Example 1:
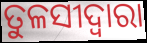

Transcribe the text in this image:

ତୁଳସୀଦ୍ବାରା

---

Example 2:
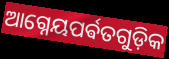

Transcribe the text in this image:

ଆଗ୍ନେୟପର୍ଵତଗୁଡ଼ିକ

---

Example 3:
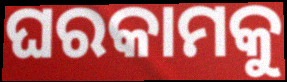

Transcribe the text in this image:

ଘରକାମକୁ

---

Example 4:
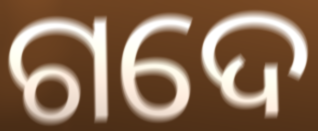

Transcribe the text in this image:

ଗଦେ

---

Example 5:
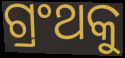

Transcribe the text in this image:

ଗ୍ରଂଥକୁ